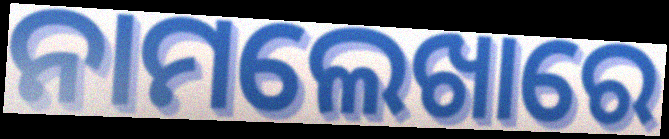
ନାମଲେଖାରେ